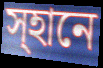
স্হানে